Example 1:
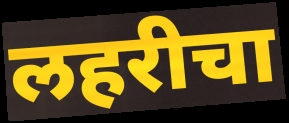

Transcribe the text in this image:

लहरीचा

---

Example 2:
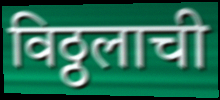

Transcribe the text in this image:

विठ्ठलाची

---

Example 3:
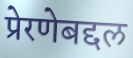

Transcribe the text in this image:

प्रेरणेबद्दल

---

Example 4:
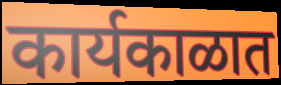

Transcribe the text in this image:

कार्यकाळात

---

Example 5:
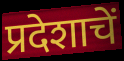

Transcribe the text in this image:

प्रदेशाचें